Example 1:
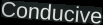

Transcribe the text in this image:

Conducive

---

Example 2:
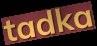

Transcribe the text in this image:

tadka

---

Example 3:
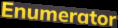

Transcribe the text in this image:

Enumerator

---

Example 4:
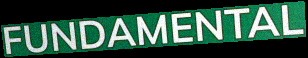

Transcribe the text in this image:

FUNDAMENTAL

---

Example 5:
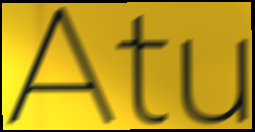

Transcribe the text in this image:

Atu